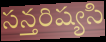
సన్తరిష్యసి